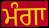
ਮੰਗਾ